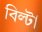
বিল্টা